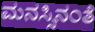
ಮನಸ್ಸಿನಂತೆ